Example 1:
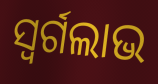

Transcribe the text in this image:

ସ୍ୱର୍ଗଲାଭ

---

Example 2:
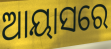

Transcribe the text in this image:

ଆୟାସରେ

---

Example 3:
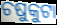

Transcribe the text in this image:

ଚଷୁକୁଟା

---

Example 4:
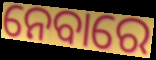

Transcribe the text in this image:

ନେବାରେ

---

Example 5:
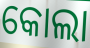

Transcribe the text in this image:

କୋଲା